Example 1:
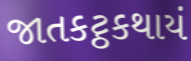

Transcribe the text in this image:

જાતકટ્ઠકથાયં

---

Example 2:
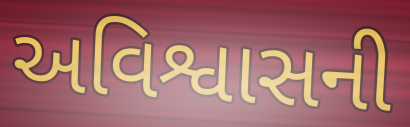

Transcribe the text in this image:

અવિશ્વાસની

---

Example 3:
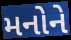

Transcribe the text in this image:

મનોને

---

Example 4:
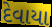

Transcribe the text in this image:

દેવાયા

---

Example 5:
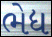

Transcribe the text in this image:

ભેદ્ય